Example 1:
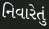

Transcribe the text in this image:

નિવારેતું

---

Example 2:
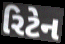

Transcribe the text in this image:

રિટેન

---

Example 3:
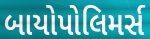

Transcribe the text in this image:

બાયોપોલિમર્સ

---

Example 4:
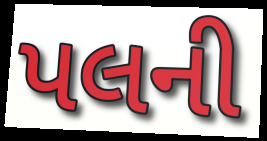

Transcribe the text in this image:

પલની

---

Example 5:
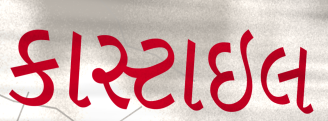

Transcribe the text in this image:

કાસ્ટાઇલ